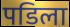
पडिला